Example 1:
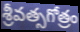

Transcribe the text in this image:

శ్రీవత్సగోత్రం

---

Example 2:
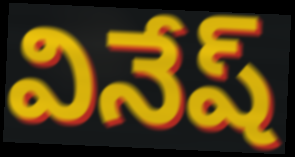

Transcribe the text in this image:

వినేష్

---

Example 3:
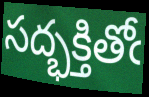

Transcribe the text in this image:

సద్భక్తితోఁ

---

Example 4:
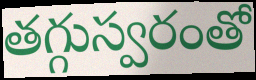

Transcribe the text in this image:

తగ్గుస్వరంతో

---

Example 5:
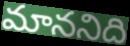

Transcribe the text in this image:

మాననిది